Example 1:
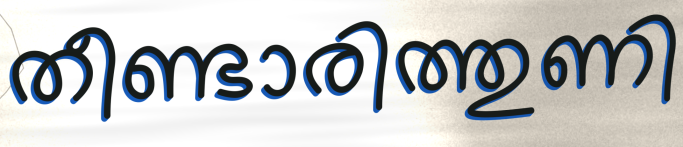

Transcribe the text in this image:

തീണ്ടാരിത്തുണി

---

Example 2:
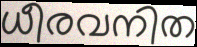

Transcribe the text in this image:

ധീരവനിത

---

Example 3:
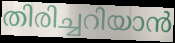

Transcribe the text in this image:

തിരിച്ചറിയാൻ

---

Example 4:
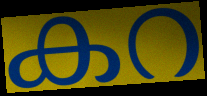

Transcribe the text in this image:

കറ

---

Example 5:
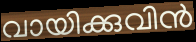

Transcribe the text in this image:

വായിക്കുവിൻ